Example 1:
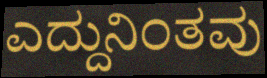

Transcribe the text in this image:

ಎದ್ದುನಿಂತವು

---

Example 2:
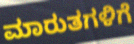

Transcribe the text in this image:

ಮಾರುತಗಳಿಗೆ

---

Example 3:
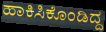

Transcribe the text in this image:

ಹಾಕಿಸಿಕೊಂಡಿದ್ದ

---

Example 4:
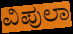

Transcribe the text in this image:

ವಿಪುಲಾ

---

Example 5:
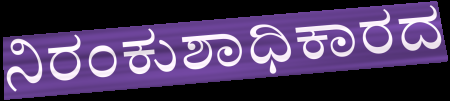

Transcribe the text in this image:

ನಿರಂಕುಶಾಧಿಕಾರದ